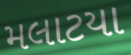
મલાટયા